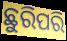
ଛୁରିପରି